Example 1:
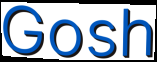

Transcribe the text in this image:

Gosh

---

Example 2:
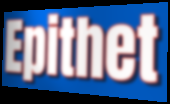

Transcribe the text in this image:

Epithet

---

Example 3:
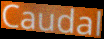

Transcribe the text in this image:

Caudal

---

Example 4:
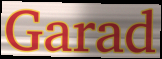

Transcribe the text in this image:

Garad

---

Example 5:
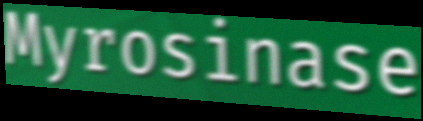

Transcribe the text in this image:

Myrosinase